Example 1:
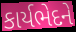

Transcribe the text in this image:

કાર્યભેદને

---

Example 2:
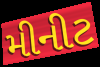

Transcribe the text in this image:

મીનીટ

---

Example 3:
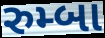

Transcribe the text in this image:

રુમ્બા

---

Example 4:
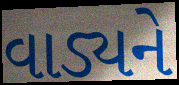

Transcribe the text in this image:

વાડ્યને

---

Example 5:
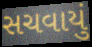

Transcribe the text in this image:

સચવાયું